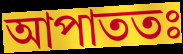
আপাততঃ